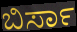
ಬಿರ್ಸಾ